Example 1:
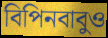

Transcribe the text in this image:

বিপিনবাবুও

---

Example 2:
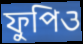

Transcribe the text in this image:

ফুপিও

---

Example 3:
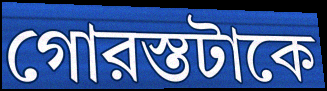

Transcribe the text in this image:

গোরস্তটাকে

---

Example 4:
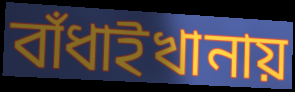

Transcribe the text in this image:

বাঁধাইখানায়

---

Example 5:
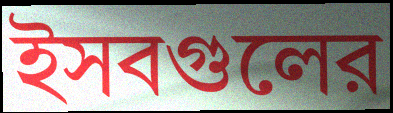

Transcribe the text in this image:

ইসবগুলের